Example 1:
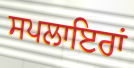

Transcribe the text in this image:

ਸਪਲਾਇਰਾਂ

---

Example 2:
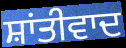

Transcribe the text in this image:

ਸ਼ਾਂਤੀਵਾਦ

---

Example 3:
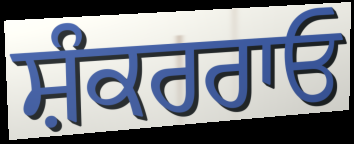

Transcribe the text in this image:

ਸ਼ੰਕਰਰਾਓ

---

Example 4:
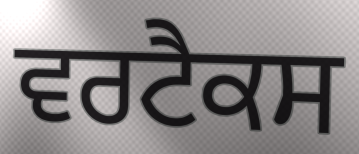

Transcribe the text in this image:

ਵਰਟੈਕਸ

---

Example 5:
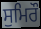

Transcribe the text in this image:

ਸੁਮਿਰੌ